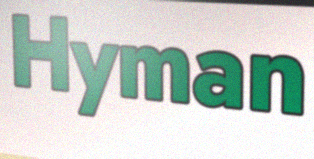
Hyman